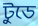
টুডে